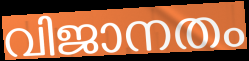
വിജാനതം